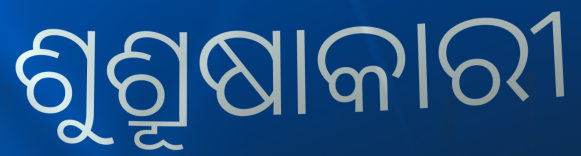
ଶୁଶ୍ରୂଷାକାରୀ